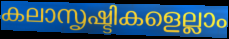
കലാസൃഷ്ടികളെല്ലാം